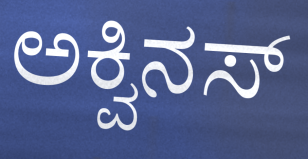
ಅಕ್ವಿನಸ್